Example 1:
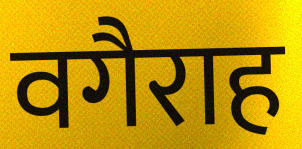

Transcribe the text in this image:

वगैराह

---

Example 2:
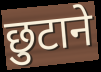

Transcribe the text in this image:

छुटाने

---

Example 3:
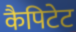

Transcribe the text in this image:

कैपिटेट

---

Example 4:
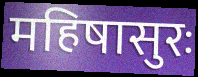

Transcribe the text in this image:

महिषासुरः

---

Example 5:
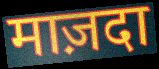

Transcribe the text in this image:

माज़दा